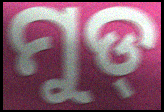
ମୁଡ୍